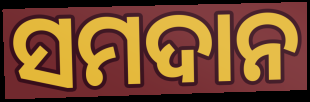
ସମଦାନ